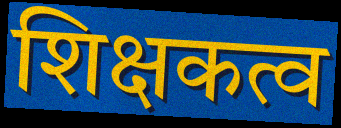
शिक्षकत्व